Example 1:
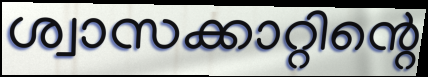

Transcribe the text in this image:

ശ്വാസക്കാറ്റിന്റെ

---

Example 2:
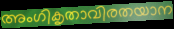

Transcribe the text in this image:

അംഗികൃതാവിരതയാന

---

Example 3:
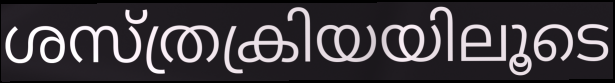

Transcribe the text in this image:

ശസ്ത്രക്രിയയിലൂടെ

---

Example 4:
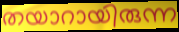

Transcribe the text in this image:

തയാറായിരുന്ന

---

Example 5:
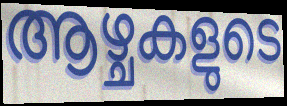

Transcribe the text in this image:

ആഴ്ചകളുടെ